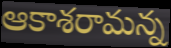
ఆకాశరామన్న